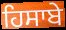
ਹਿਸਾਬੇ